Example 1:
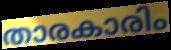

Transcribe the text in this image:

താരകാരിം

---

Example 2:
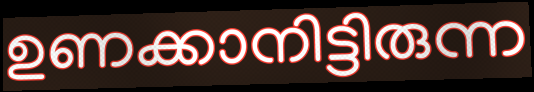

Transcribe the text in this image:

ഉണക്കാനിട്ടിരുന്ന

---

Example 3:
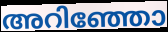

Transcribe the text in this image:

അറിഞ്ഞോ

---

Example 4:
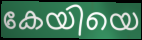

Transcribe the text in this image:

കേയിയെ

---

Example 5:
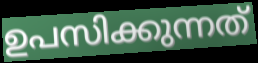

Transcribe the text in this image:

ഉപസിക്കുന്നത്